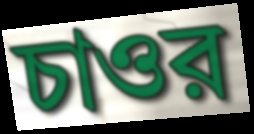
চাওর